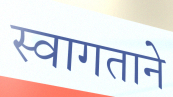
स्वागताने